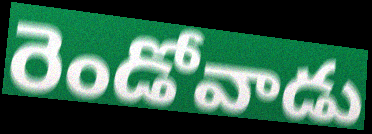
రెండోవాడు